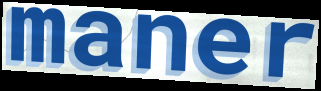
maner